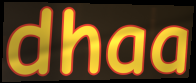
dhaa